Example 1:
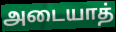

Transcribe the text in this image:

அடையாத்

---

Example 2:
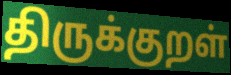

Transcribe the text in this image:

திருக்குறள்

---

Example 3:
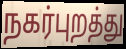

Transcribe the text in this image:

நகர்புறத்து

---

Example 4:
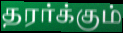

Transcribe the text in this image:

தரர்க்கும்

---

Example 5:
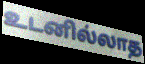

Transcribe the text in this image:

உடனில்லாத